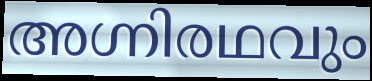
അഗ്നിരഥവും